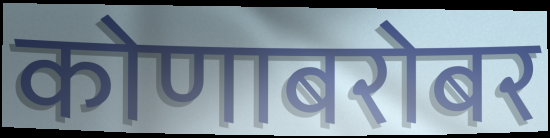
कोणाबरोबर